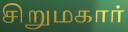
சிறுமகார்